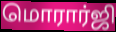
மொரார்ஜி